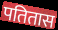
पतितास